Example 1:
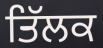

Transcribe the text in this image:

ਤਿੱਲਕ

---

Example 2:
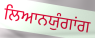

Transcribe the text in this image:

ਲਿਆਨਯੁੰਗਾਂਗ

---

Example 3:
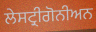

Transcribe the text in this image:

ਲੇਸਟ੍ਰੀਗੋਨੀਅਨ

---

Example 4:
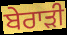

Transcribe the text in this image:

ਬੇਰਾੜੀ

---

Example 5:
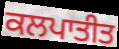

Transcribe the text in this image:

ਕਲਪਾਤੀਤ